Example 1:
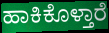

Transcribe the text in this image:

ಹಾಕಿಕೊಳ್ತಾರೆ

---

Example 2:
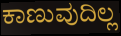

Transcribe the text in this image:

ಕಾಣುವುದಿಲ್ಲ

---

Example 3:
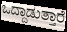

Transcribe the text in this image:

ಒದ್ದಾಡುತ್ತಾರೆ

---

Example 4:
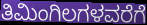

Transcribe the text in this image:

ತಿಮಿಂಗಿಲಗಳವರೆಗೆ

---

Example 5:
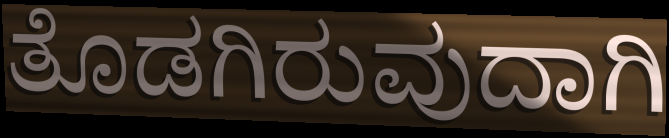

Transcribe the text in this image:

ತೊಡಗಿರುವುದಾಗಿ